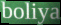
boliya